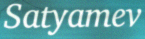
Satyamev